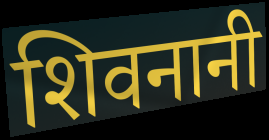
शिवनानी